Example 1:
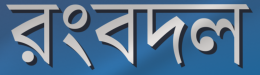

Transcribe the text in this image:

রংবদল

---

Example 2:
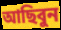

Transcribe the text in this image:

আছিবুন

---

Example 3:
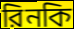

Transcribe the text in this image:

রিনকি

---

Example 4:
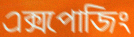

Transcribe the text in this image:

এক্সপোজিং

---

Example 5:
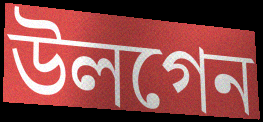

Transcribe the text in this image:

উলগেন